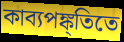
কাব্যপঙ্ক্তিতে